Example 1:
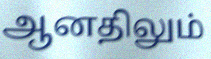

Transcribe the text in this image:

ஆனதிலும்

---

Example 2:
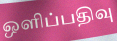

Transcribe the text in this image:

ஒளிப்பதிவு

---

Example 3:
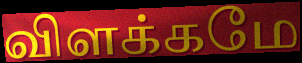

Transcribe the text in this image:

விளக்கமே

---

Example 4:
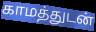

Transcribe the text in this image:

காமத்துடன்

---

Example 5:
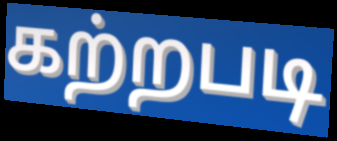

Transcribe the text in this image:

கற்றபடி